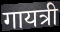
गायत्री